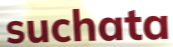
suchata